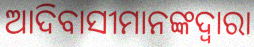
ଆଦିବାସୀମାନଙ୍କଦ୍ୱାରା